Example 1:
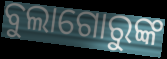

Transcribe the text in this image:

ବୁଲାଗୋରୁଙ୍କ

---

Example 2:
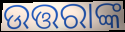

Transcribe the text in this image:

ଉତ୍ତରାଙ୍କ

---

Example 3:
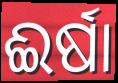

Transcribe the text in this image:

ଈର୍ଷା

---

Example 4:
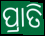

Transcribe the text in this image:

ପ୍ରାତି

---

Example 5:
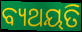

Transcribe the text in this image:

ବ୍ୟଥୟତି